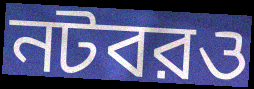
নটবরও